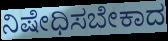
ನಿಷೇಧಿಸಬೇಕಾದ